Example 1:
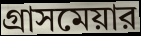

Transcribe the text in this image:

গ্রাসমেয়ার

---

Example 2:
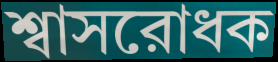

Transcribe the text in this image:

শ্বাসরোধক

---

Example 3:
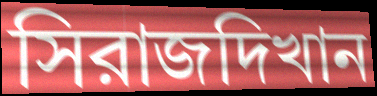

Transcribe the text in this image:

সিরাজদিখান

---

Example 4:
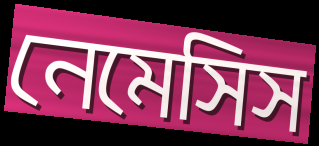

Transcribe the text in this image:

নেমেসিস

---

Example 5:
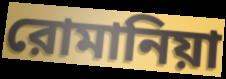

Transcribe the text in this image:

রোমানিয়া